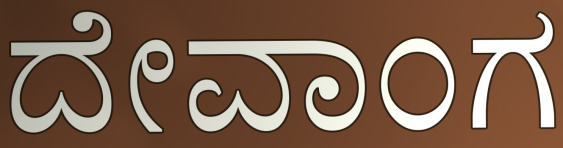
ದೇವಾಂಗ